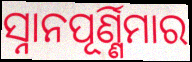
ସ୍ନାନପୂର୍ଣ୍ଣିମାର